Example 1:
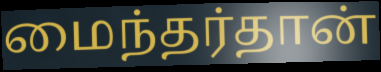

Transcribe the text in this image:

மைந்தர்தான்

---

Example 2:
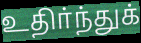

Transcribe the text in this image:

உதிர்ந்துக்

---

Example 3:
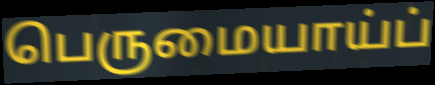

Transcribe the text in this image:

பெருமையாய்ப்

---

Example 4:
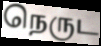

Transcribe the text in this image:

நெருட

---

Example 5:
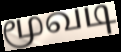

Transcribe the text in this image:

மூவடி